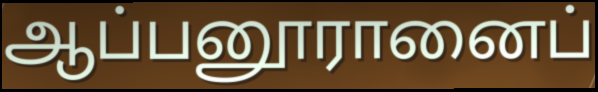
ஆப்பனூரானைப்